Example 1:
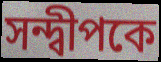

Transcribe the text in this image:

সন্দ্বীপকে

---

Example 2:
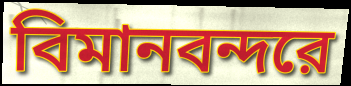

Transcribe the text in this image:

বিমানবন্দরে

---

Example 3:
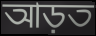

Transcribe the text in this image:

আড়ত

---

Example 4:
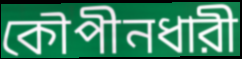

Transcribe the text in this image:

কৌপীনধারী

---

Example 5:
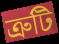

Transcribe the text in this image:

ত্রুটি